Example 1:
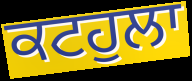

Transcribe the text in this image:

ਕਟਹੁਲਾ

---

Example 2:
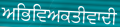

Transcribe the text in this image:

ਅਭਿਵਿਅਕਤੀਵਾਦੀ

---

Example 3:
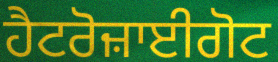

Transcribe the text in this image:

ਹੈਟਰੋਜ਼ਾਈਗੋਟ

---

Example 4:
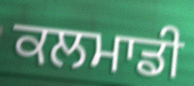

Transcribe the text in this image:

ਕਲਮਾਡੀ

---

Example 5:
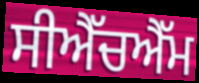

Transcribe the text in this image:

ਸੀਐੱਚਐੱਮ